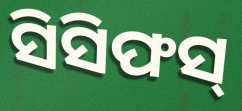
ସିସିଫସ୍